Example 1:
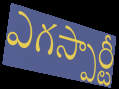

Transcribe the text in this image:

ఎగస్పార్టీ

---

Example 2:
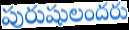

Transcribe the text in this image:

పురుషులందరు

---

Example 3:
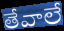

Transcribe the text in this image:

తేవాలే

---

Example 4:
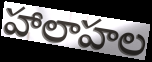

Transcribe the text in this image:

హాలాహల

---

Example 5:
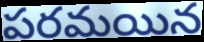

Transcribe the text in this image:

పరమయిన